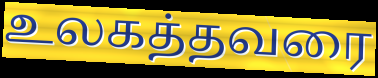
உலகத்தவரை